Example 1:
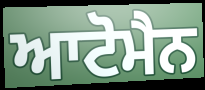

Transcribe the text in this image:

ਆਟੋਮੈਨ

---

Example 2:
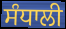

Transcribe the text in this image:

ਸੰਧਾਲੀ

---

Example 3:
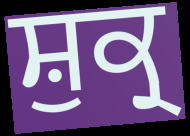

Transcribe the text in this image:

ਸ਼ੁਕ੍ਰ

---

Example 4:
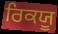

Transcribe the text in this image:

ਰਿਕਯੂ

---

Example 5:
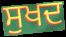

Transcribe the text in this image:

ਸੁਖਦ